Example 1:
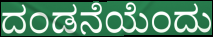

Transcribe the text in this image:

ದಂಡನೆಯೆಂದು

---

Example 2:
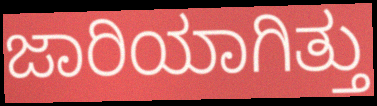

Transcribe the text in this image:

ಜಾರಿಯಾಗಿತ್ತು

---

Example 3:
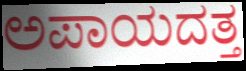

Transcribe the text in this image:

ಅಪಾಯದತ್ತ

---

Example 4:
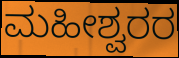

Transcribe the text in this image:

ಮಹೀಶ್ವರರ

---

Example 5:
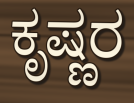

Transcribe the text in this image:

ಕೃಷ್ಣರ